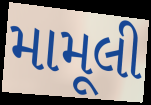
મામૂલી